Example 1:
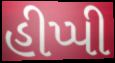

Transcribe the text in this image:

હીપ્પી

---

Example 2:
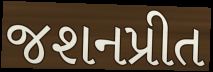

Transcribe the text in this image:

જશનપ્રીત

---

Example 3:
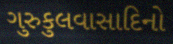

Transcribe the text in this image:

ગુરુકુલવાસાદિનો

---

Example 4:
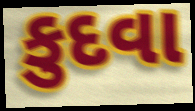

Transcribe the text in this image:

કુદવા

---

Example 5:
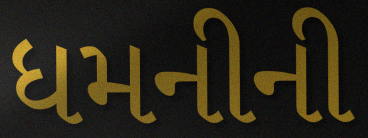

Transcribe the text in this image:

ધમનીની